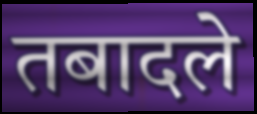
तबादले